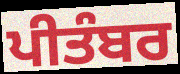
ਪੀਤੰਬਰ